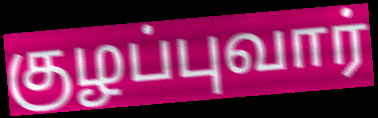
குழப்புவார்